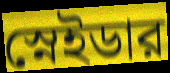
স্নেইডার